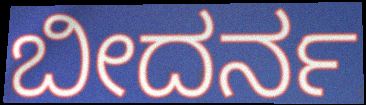
ಬೀದರ್ನ